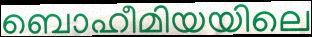
ബൊഹീമിയയിലെ